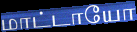
மாட்டாயோ